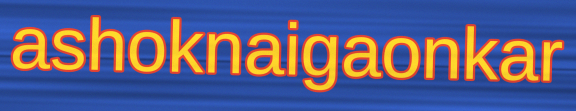
ashoknaigaonkar